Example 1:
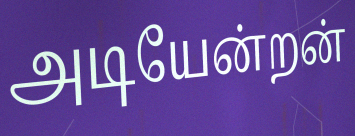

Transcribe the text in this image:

அடியேன்றன்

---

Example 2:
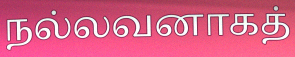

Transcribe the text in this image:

நல்லவனாகத்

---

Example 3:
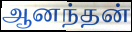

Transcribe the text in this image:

ஆனந்தன்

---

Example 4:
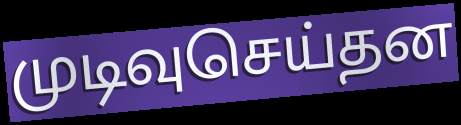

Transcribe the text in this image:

முடிவுசெய்தன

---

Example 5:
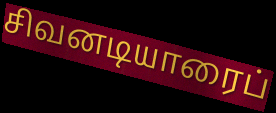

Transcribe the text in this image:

சிவனடியாரைப்